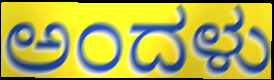
ಅಂದಳು